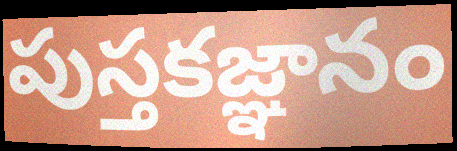
పుస్తకజ్ఞానం